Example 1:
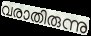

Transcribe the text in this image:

വരാതിരുന്നു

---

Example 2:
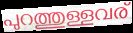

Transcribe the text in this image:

പുറത്തുള്ളവര്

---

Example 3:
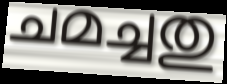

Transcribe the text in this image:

ചമച്ചതു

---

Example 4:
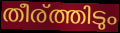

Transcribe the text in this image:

തീര്ത്തിടും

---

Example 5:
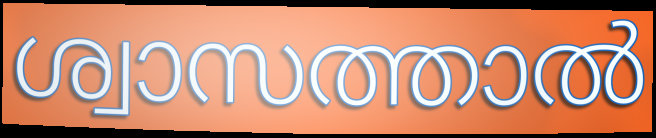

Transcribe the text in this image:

ശ്വാസത്താൽ